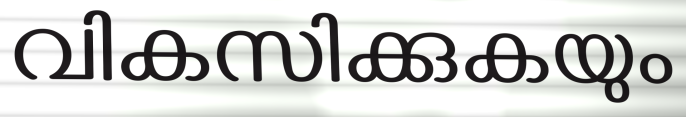
വികസിക്കുകയും